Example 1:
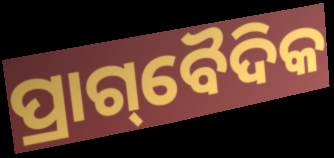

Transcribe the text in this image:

ପ୍ରାଗ୍‌ବୈଦିକ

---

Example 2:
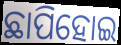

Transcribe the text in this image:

ଛାପିହୋଇ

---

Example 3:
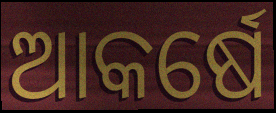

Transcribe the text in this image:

ଆକର୍ଷେ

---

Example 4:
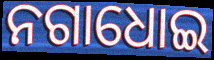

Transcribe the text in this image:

ନଗାଧୋଇ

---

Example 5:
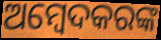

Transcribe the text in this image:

ଅମ୍ବେଦକରଙ୍କ